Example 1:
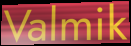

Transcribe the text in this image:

Valmik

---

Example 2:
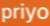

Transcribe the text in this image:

priyo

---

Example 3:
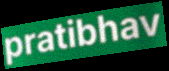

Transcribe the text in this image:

pratibhav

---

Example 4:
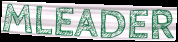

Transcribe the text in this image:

MLEADER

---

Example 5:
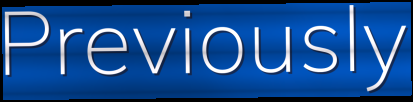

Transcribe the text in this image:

Previously